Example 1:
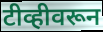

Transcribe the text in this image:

टीव्हीवरून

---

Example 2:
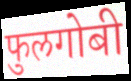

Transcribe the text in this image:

फुलगोबी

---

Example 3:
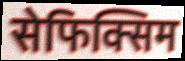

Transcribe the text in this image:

सेफिक्सिम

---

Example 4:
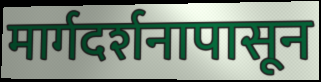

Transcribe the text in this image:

मार्गदर्शनापासून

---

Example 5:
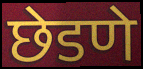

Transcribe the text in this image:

छेडणे